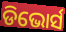
ଡିଭୋର୍ସ